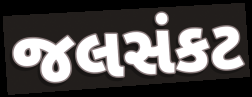
જલસંકટ